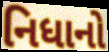
નિધાનો